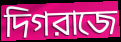
দিগরাজে